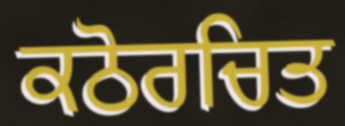
ਕਠੋਰਚਿਤ